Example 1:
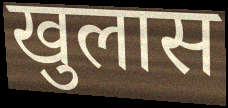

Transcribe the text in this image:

खुलास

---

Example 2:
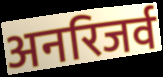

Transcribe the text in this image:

अनरिजर्व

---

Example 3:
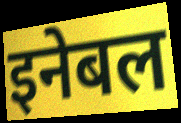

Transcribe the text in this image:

इनेबल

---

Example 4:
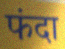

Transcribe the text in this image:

फंदा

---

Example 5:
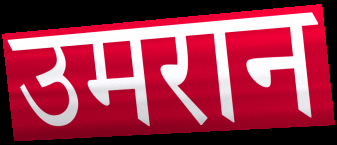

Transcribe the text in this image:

उमरान